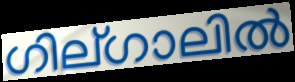
ഗില്ഗാലിൽ